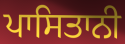
ਪਾਸਿਤਾਨੀ